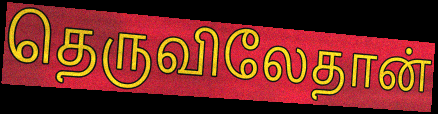
தெருவிலேதான்